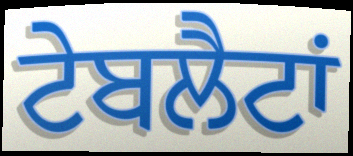
ਟੇਬਲੈਟਾਂ